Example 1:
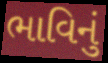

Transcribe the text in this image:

ભાવિનું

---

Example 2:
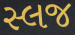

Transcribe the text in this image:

સ્લજ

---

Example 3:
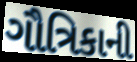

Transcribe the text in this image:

ગૌત્રિકાની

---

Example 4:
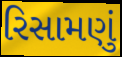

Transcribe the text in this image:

રિસામણું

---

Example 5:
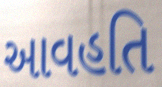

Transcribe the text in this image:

આવહતિ